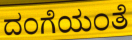
ದಂಗೆಯಂತೆ